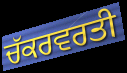
ਚੱਕਰਵਰਤੀ